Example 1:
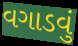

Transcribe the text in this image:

વગાડવું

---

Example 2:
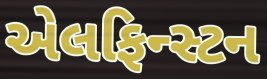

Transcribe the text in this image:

એલફિન્સ્ટન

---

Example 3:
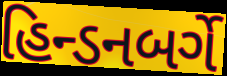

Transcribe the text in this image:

હિન્ડનબર્ગે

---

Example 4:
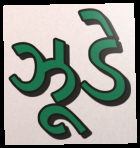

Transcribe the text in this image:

ઝૂડે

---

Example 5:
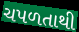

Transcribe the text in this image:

ચપળતાથી